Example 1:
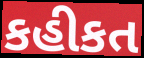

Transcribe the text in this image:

કહીકત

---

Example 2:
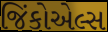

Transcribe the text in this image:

જિંકોએલ્સ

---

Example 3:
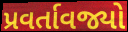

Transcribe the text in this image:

પ્રવર્તાવજ્યો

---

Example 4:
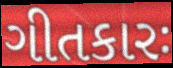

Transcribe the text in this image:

ગીતકારઃ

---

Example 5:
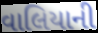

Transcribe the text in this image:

વાલિયાની